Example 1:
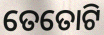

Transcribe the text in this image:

ତେତୋଟି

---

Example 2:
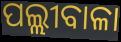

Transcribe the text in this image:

ପଲ୍ଲୀବାଳା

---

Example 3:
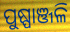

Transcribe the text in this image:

ପୁଷ୍ପାଞ୍ଜଳି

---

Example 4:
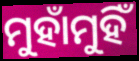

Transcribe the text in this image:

ମୁହାଁମୁହିଁ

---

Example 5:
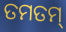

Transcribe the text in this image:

ତମତମ୍